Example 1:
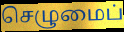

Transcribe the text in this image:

செழுமைப்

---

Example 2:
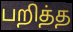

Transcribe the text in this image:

பறித்த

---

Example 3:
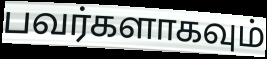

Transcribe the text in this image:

பவர்களாகவும்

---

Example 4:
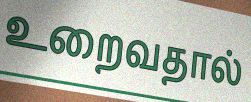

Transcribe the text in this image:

உறைவதால்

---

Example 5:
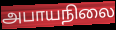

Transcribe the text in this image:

அபாயநிலை